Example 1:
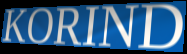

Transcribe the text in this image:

KORIND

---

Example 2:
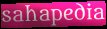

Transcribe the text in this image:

sahapedia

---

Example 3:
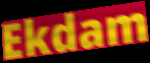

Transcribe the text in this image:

Ekdam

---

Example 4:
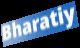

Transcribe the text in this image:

Bharatiy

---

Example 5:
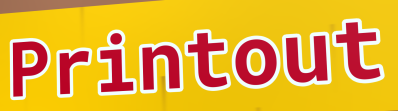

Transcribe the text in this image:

Printout